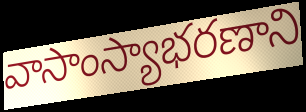
వాసాంస్యాభరణాని